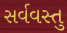
સર્વવસ્તુ